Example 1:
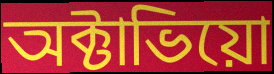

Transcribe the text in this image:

অক্টাভিয়ো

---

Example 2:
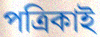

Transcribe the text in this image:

পত্রিকাই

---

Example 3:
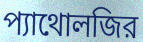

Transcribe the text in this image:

প্যাথোলজির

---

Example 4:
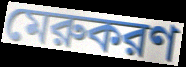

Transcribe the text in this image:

মেরুকরণ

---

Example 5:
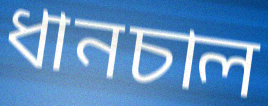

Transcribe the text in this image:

ধানচাল